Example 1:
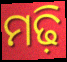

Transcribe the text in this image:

ମଢ଼ି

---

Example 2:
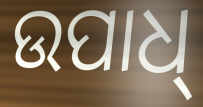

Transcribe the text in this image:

ଉପାଧ୍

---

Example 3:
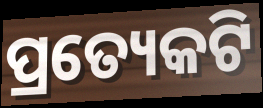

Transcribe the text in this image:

ପ୍ରତ୍ୟେକଟି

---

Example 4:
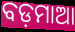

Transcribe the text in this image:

ବଡ଼ମାଆ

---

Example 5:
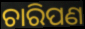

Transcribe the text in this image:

ଚାରିପଣ